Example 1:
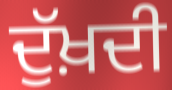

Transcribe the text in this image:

ਦੁੱਖ਼ਦੀ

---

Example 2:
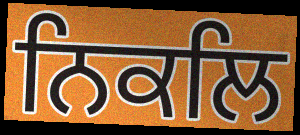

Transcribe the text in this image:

ਨਿਕਲਿ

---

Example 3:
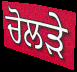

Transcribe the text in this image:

ਚੋਲੜੇ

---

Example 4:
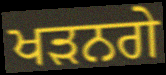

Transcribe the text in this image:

ਖੜਨਗੇ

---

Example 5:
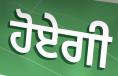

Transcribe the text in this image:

ਹੋਏਗੀ